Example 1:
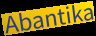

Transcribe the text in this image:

Abantika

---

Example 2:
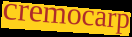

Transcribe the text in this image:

cremocarp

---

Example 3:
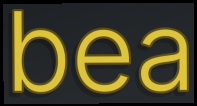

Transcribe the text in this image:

bea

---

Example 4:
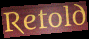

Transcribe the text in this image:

Retold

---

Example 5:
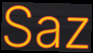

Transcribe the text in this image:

Saz